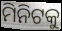
ମିନିଟକୁ